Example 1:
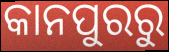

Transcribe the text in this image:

କାନପୁରରୁ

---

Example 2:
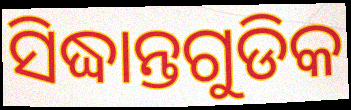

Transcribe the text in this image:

ସିଦ୍ଧାନ୍ତଗୁଡିକ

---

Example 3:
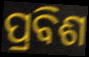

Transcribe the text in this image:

ପ୍ରବିଶ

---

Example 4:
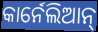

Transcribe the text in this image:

କାର୍ନେଲିଆନ୍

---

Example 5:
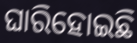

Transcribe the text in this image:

ଘାରିହୋଇଛି